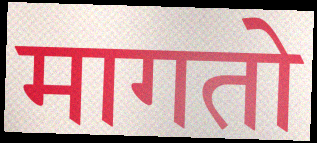
मागतो